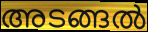
അടങ്ങൽ